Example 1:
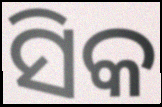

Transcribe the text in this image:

ସିକ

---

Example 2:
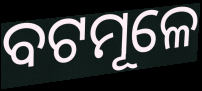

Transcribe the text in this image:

ବଟମୂଳେ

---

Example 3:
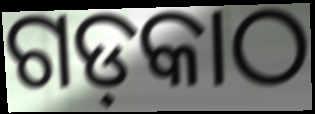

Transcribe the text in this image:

ଗଡ଼କାଠ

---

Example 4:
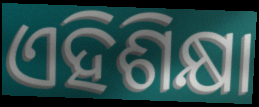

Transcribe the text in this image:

ଏହିଶିକ୍ଷା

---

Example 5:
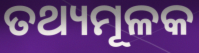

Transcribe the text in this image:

ତଥ୍ୟମୂଳକ